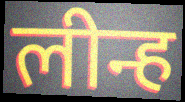
लीन्ह